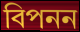
বিপনন